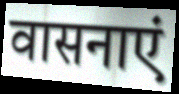
वासनाएं